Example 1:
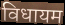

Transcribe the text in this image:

विधायम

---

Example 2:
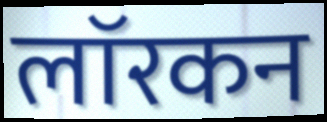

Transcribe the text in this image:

लॉरकन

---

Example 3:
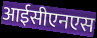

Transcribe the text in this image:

आईसीएनएस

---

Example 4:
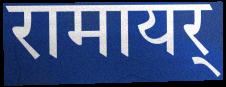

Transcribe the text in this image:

रामायर्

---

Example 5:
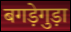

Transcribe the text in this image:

बगड़ेगुड़ा